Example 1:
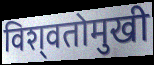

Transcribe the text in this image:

विश्वतोमुखी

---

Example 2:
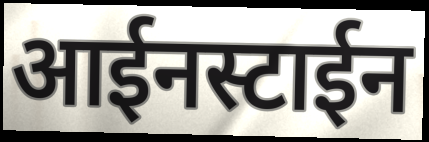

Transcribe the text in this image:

आईनस्टाईन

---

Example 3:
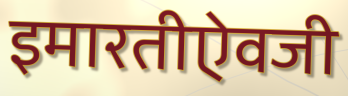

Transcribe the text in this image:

इमारतीऐवजी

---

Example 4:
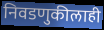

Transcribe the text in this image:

निवडणुकीलाही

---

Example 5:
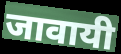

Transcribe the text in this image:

जावायी